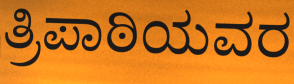
ತ್ರಿಪಾಠಿಯವರ